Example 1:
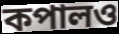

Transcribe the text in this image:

কপালও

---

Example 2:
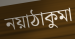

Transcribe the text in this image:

নয়াঠাকুমা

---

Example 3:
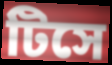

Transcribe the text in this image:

টিসে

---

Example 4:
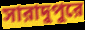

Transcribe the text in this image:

সারাদুপুরে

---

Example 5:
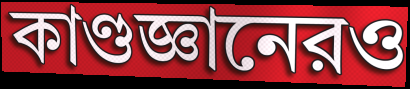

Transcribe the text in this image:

কাণ্ডজ্ঞানেরও